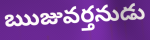
ఋజువర్తనుడు